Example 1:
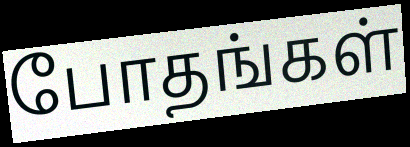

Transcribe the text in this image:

போதங்கள்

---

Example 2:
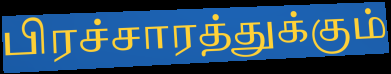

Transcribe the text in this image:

பிரச்சாரத்துக்கும்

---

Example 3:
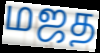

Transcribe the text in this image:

மஜத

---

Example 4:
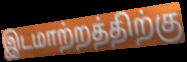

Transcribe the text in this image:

இடமாற்றத்திற்கு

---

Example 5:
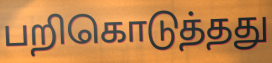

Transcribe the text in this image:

பறிகொடுத்தது